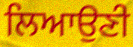
ਲਿਆਉਣੀ